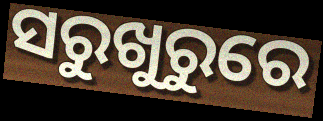
ସରୁଖୁରୁରେ